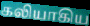
கலியாகிய